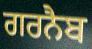
ਗਰਨੈਬ